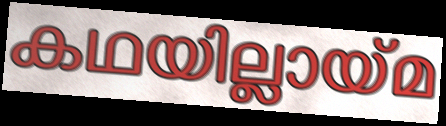
കഥയില്ലായ്മ